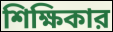
শিক্ষিকার